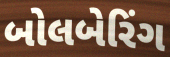
બોલબેરિંગ